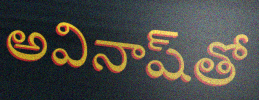
అవినాష్‌తో